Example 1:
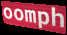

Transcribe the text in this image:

oomph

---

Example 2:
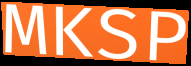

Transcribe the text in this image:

MKSP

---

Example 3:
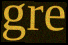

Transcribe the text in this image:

gre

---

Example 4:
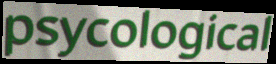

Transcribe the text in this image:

psycological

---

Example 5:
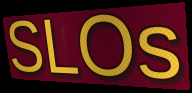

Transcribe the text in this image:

SLOs